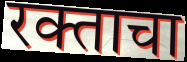
रक्‍ताचा